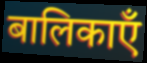
बालिकाएँ